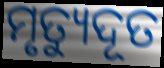
ମୃତ୍ୟୁଦୂତ